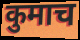
कुमाच